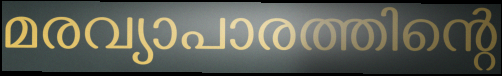
മരവ്യാപാരത്തിന്റെ